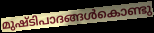
മുഷ്ടിപാദങ്ങൾകൊണ്ടു